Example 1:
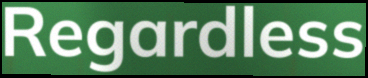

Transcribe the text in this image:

Regardless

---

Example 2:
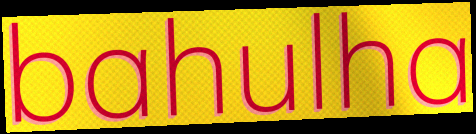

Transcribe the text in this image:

bahulha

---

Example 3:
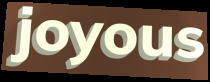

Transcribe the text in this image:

joyous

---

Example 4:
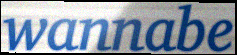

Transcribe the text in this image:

wannabe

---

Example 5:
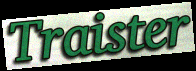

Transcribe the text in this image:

Traister